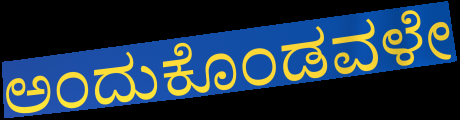
ಅಂದುಕೊಂಡವಳೇ